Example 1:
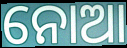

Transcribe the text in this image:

ନୋଆ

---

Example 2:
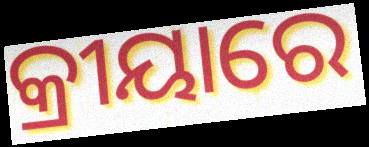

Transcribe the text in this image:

କ୍ରୀୟାରେ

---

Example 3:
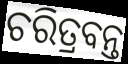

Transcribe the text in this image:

ଚରିତ୍ରବନ୍ତ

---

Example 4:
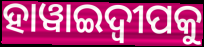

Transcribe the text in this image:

ହାୱାଇଦ୍ଵୀପକୁ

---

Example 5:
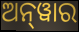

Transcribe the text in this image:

ଅନ୍‌ୱାର